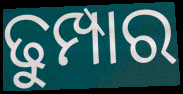
ଢୁମ୍ପାର